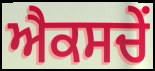
ਐਕਸਚੇਂ